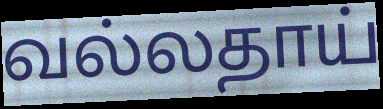
வல்லதாய்